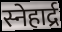
स्नेहार्द्र